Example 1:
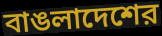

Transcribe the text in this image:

বাঙলাদেশের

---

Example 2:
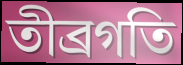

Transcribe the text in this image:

তীব্রগতি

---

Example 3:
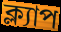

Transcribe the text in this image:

ক্ল্যাপ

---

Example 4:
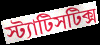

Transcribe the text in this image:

স্ট্যাটিসটিক্স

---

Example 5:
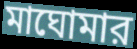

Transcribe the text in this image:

মাঘোমার